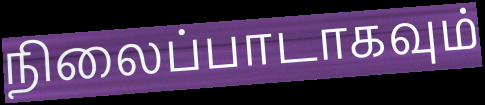
நிலைப்பாடாகவும்